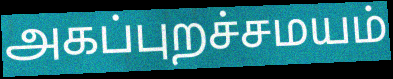
அகப்புறச்சமயம்